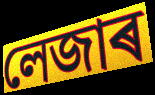
লেজাৰ